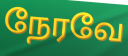
நேரவே